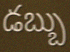
డబ్బు